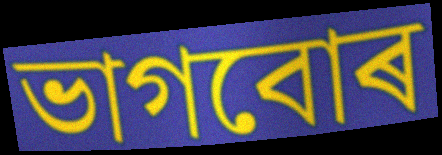
ভাগবোৰ